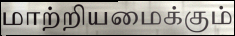
மாற்றியமைக்கும்